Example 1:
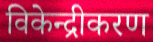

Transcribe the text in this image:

विकेन्द्रीकरण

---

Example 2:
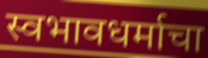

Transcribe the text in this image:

स्वभावधर्माचा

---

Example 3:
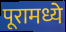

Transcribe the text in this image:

पूरामध्ये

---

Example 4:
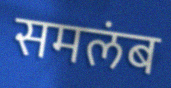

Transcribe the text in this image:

समलंब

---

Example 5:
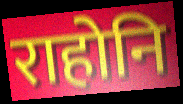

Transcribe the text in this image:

राहोनि